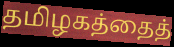
தமிழகத்தைத்